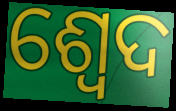
ଶ୍ଵେଦ